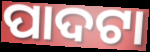
ପାଦଟା